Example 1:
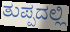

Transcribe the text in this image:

ತುಪ್ಪದಲ್ಲಿ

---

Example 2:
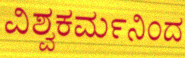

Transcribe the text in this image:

ವಿಶ್ವಕರ್ಮನಿಂದ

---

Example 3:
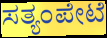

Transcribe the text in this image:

ಸತ್ಯಂಪೇಟೆ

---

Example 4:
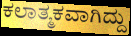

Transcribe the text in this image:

ಕಲಾತ್ಮಕವಾಗಿದ್ದು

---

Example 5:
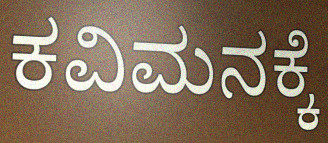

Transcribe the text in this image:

ಕವಿಮನಕ್ಕೆ